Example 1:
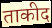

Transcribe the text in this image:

ताकीद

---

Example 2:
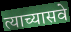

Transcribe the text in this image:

त्याच्यासवे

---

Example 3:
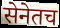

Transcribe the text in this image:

सेनेतच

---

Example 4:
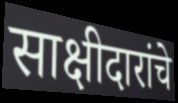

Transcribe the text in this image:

साक्षीदारांचे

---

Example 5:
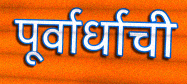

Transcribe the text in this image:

पूर्वार्धाची